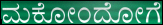
ಮಕೋಂದೋಗೆ